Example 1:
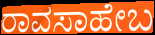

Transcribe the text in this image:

ರಾವಸಾಹೇಬ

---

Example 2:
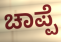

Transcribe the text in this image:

ಚಾಪ್ಪೆ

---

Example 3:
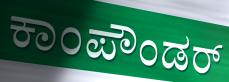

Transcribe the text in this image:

ಕಾಂಪೌಂಡರ್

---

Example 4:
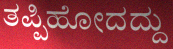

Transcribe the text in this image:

ತಪ್ಪಿಹೋದದ್ದು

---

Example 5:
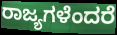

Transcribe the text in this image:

ರಾಜ್ಯಗಳೆಂದರೆ